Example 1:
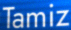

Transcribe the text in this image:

Tamiz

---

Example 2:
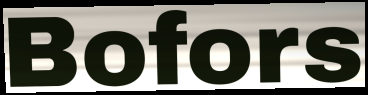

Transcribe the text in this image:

Bofors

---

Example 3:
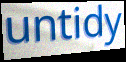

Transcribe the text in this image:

untidy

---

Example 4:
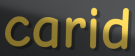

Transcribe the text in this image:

carid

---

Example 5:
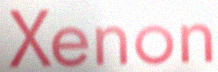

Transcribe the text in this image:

Xenon